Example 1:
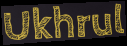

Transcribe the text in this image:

Ukhrul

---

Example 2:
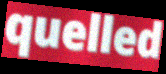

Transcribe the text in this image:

quelled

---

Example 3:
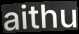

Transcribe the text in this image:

aithu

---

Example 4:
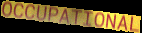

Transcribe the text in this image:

OCCUPATIONAL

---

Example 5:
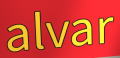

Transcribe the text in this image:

alvar